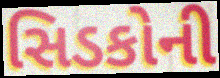
સિડકોની